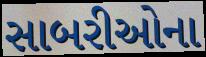
સાબરીઓના